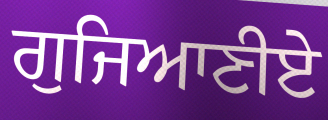
ਗੁਜਿਆਣੀਏ